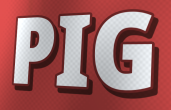
PIG